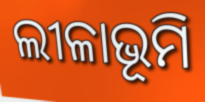
ଲୀଳାଭୂମି